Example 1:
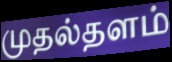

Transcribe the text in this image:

முதல்தளம்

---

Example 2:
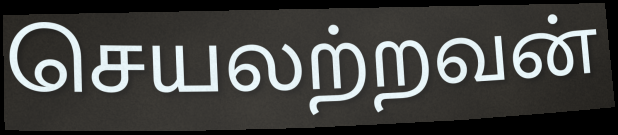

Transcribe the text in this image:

செயலற்றவன்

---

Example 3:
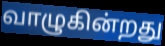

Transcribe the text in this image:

வாழுகின்றது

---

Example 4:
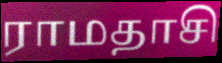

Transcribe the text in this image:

ராமதாசி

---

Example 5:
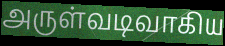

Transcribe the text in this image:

அருள்வடிவாகிய